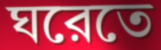
ঘরেতে